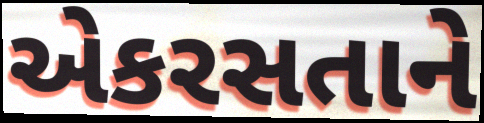
એકરસતાને